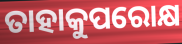
ତାହାକୁପରୋକ୍ଷ